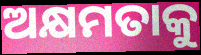
ଅକ୍ଷମତାକୁ